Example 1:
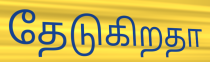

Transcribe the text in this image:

தேடுகிறதா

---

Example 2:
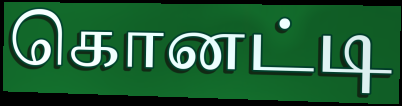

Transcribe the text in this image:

கொனட்டி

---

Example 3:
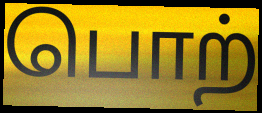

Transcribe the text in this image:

பொற்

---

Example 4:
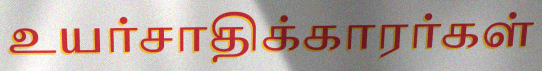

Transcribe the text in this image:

உயர்சாதிக்காரர்கள்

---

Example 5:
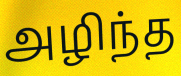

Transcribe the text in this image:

அழிந்த